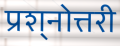
प्रश्नोत्तरी